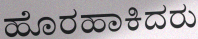
ಹೊರಹಾಕಿದರು